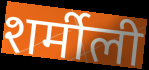
शर्मीली